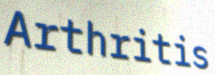
Arthritis